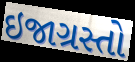
ઇજાગ્રસ્તો